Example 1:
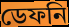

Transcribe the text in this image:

ডেফনি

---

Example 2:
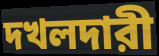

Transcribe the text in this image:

দখলদারী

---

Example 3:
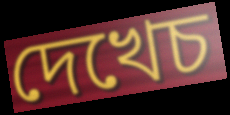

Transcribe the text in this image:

দেখেচ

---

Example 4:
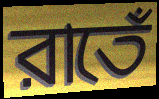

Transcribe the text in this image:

রাতেঁ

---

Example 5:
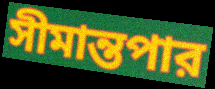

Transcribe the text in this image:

সীমান্তপার